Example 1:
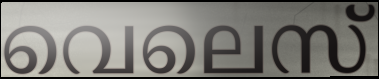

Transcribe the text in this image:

വെലെസ്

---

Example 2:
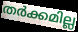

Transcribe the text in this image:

തർക്കമില്ല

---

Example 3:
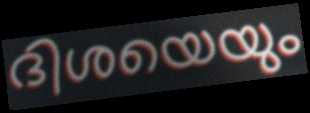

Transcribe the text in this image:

ദിശയെയും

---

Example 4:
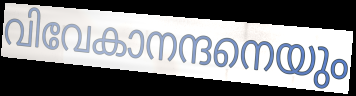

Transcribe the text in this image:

വിവേകാനന്ദനെയും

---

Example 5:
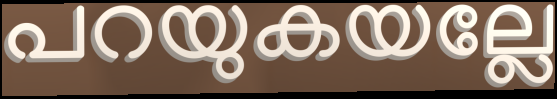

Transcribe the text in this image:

പറയുകയല്ലേ